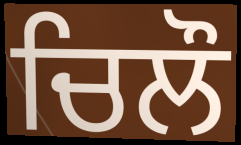
ਚਿਲੌ